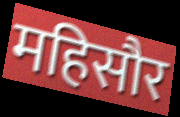
महिसौर